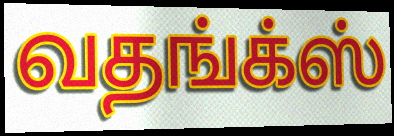
வதங்க்ஸ்